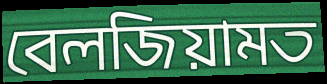
বেলজিয়ামত